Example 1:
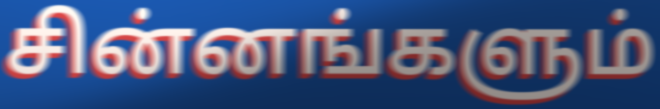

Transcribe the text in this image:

சின்னங்களும்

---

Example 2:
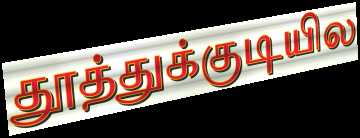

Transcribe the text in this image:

தூத்துக்குடியில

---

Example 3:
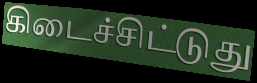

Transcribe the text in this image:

கிடைச்சிட்டுது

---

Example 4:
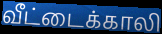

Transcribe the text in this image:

வீட்டைக்காலி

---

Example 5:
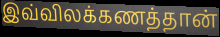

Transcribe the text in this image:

இவ்விலக்கணத்தான்